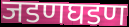
जडणघडण